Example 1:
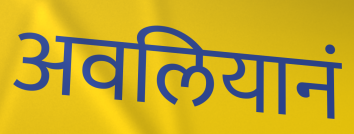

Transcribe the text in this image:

अवलियानं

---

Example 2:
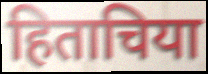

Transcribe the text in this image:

हिताचिया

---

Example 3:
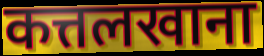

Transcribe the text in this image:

कत्तलखाना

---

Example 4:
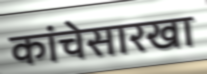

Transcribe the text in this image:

कांचेसारखा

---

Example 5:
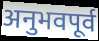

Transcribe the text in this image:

अनुभवपूर्व